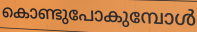
കൊണ്ടുപോകുമ്പോൾ